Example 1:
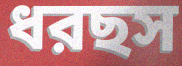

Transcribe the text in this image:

ধরছস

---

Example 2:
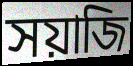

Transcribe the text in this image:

সয়াজি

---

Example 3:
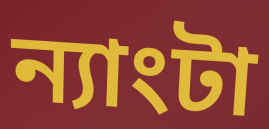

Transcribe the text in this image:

ন্যাংটা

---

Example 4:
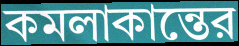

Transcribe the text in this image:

কমলাকান্তের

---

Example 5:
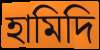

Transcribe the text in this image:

হামিদি